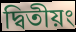
দ্বিতীয়ং